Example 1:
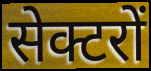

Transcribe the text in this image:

सेक्टरों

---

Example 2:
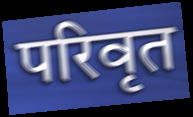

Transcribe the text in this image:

परिवृत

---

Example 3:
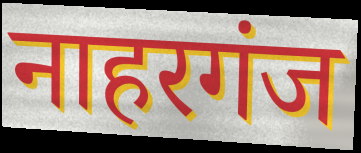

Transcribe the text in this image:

नाहरगंज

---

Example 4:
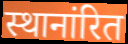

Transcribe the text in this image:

स्थानांरित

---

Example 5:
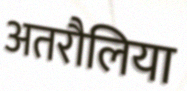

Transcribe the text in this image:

अतरौलिया